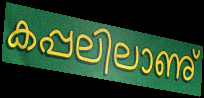
കപ്പലിലാണു്